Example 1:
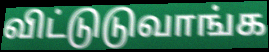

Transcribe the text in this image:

விட்டுடுவாங்க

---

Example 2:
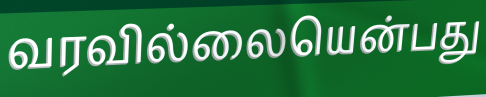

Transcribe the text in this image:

வரவில்லையென்பது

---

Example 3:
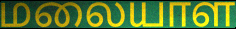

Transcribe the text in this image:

மலையாள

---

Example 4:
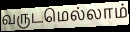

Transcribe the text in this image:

வருடமெல்லாம்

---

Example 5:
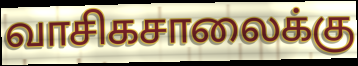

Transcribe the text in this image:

வாசிகசாலைக்கு